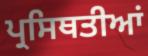
ਪ੍ਰਸਿਥਤੀਆਂ